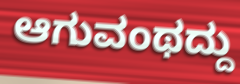
ಆಗುವಂಥದ್ದು